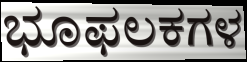
ಭೂಫಲಕಗಳ